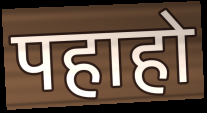
पहाहो